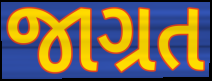
જાગ્રત